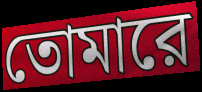
তোমারে